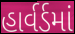
હાર્વર્ડમાં